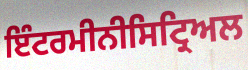
ਇੰਟਰਮੀਨੀਸਿਟ੍ਰਿਅਲ